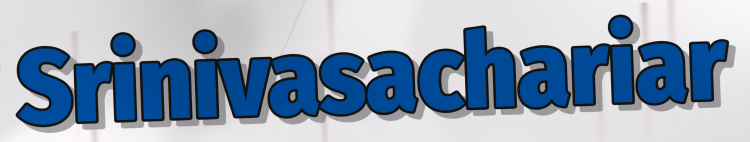
Srinivasachariar